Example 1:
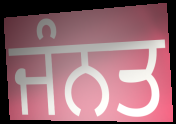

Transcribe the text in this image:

ਜੰਨਤ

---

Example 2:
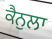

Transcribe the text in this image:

ਕੈਨੁਲਾ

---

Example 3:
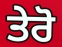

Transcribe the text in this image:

ਤੇਰੋ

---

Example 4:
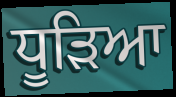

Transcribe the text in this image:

ਧੂੜਿਆ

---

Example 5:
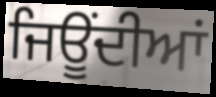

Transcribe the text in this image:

ਜਿਊਂਦੀਆਂ